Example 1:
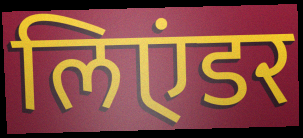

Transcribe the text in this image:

लिएंडर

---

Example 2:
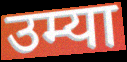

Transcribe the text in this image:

उम्या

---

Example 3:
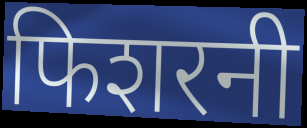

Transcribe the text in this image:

फिशरनी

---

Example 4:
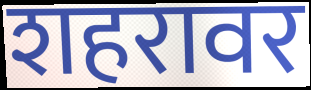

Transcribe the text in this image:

शहरावर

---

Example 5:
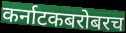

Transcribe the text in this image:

कर्नाटकबरोबरच